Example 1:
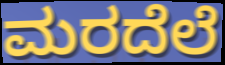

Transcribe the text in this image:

ಮರದೆಲೆ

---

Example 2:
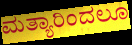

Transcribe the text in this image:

ಮತ್ಯಾರಿಂದಲೂ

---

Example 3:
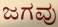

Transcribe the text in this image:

ಜಗವು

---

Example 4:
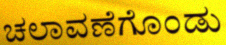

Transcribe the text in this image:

ಚಲಾವಣೆಗೊಂಡು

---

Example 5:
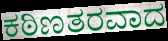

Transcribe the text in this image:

ಕಠಿಣತರವಾದ